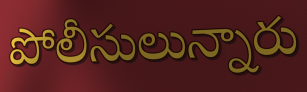
పోలీసులున్నారు